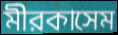
মীরকাসেম